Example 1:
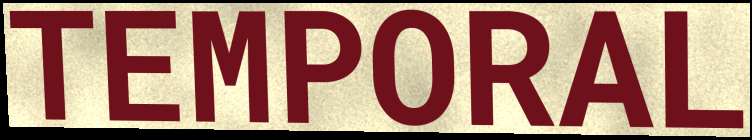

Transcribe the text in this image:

TEMPORAL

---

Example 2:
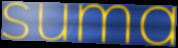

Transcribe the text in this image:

suma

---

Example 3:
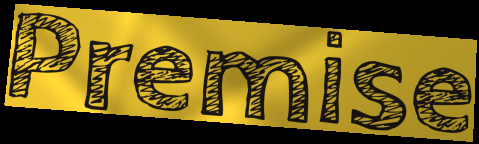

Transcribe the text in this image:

Premise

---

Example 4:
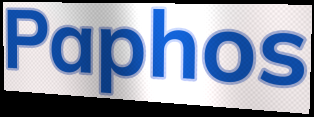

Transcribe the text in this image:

Paphos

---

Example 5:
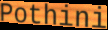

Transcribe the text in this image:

Pothini